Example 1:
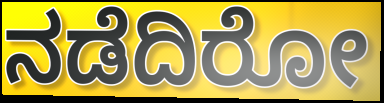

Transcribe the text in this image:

ನಡೆದಿರೋ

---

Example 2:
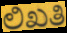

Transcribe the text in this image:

ಲಿಖತಿ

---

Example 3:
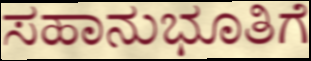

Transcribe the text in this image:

ಸಹಾನುಭೂತಿಗೆ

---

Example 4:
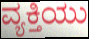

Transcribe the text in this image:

ವ್ಯಕ್ತಿಯು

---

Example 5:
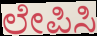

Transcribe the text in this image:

ಲೇಪಿಸಿ